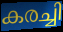
കരച്ചി